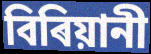
বিৰিয়ানী